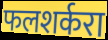
फलशर्करा